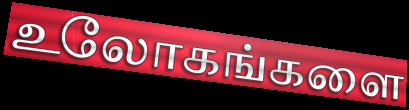
உலோகங்களை